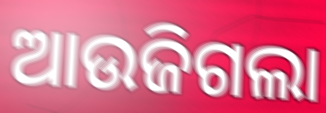
ଆଉଜିଗଲା